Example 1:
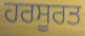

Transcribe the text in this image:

ਹਰਸੂਰਤ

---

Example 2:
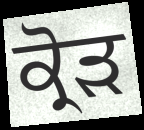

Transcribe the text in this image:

ਕ੍ਰੋੜ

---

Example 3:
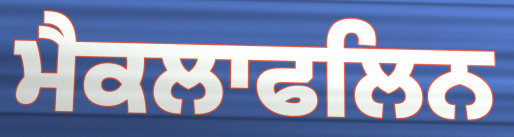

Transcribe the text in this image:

ਮੈਕਲਾਫਲਿਨ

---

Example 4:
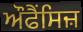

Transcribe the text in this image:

ਔਫੈਂਸਿਜ਼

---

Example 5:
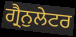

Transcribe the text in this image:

ਗ੍ਰੈਨੁਲੇਟਰ